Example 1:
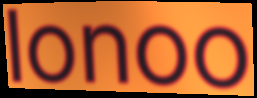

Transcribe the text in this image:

lonoo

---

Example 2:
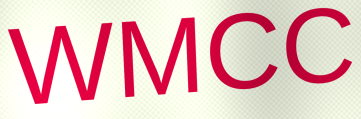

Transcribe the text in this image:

WMCC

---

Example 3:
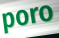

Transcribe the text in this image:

poro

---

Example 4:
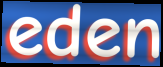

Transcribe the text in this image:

eden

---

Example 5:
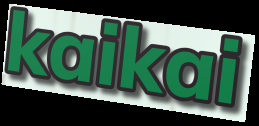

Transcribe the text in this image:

kaikai